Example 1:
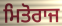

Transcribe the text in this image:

ਮਿਤੋਰਾਜ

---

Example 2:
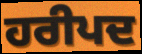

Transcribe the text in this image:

ਹਰੀਪਦ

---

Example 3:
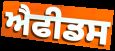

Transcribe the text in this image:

ਐਫੀਡਸ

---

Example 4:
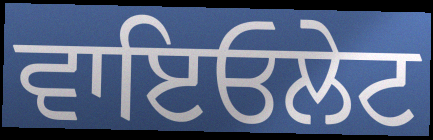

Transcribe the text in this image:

ਵਾਇਓਲੇਟ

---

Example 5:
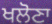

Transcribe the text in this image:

ਖਲੋਣਾ